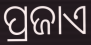
ପ୍ରଜାଏ